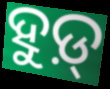
ହୁଡ଼୍